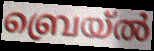
ബ്രെയ്ൽ